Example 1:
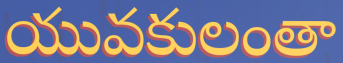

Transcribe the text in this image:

యువకులంతా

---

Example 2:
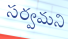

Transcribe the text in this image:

సర్వమని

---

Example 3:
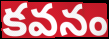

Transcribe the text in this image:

కవనం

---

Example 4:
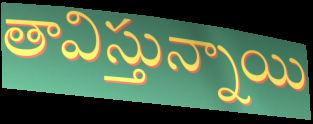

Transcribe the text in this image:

తావిస్తున్నాయి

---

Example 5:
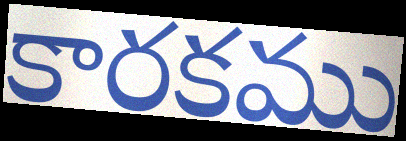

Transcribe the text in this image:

కారకము